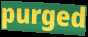
purged